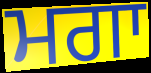
ਮਗਾ